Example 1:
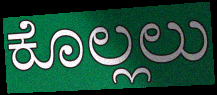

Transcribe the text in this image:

ಕೊಲ್ಲಲು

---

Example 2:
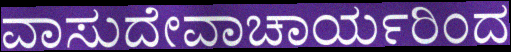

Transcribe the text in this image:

ವಾಸುದೇವಾಚಾರ್ಯರಿಂದ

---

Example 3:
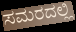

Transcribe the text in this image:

ಸಮರದಲ್ಲಿ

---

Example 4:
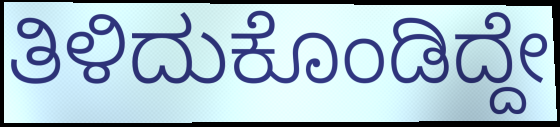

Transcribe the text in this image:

ತಿಳಿದುಕೊಂಡಿದ್ದೇ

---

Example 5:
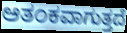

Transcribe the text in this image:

ಆತಂಕವಾಗುತ್ತದೆ